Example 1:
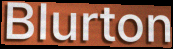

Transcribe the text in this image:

Blurton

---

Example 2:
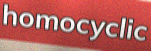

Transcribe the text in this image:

homocyclic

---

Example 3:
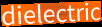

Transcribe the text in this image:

dielectric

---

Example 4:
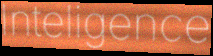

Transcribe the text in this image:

Inteligence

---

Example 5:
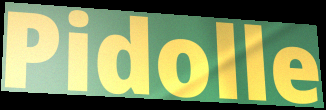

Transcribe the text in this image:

Pidolle